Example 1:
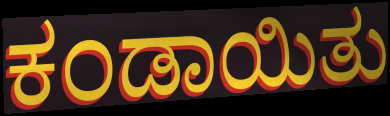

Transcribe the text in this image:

ಕಂಡಾಯಿತು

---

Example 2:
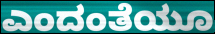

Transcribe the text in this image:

ಎಂದಂತೆಯೂ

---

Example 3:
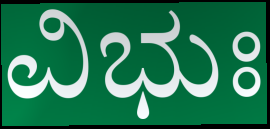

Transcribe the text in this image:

ವಿಭುಃ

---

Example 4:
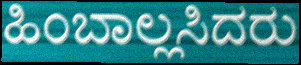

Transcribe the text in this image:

ಹಿಂಬಾಲ್ಲಸಿದರು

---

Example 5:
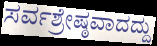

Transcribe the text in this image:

ಸರ್ವಶ್ರೇಷ್ಠವಾದದ್ದು